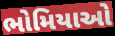
ભોમિયાઓ